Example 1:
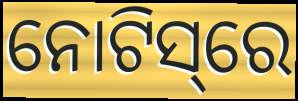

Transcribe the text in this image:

ନୋଟିସ୍‌ରେ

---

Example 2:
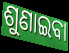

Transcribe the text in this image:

ଶୁଣାଇବା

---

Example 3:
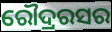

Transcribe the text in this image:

ରୌଦ୍ରରସର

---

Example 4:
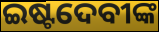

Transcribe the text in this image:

ଇଷ୍ଟଦେବୀଙ୍କ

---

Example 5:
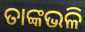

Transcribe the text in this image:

ତାଙ୍କଭଳି